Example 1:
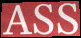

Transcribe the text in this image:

ASS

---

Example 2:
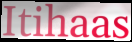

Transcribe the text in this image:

Itihaas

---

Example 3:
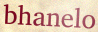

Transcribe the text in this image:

bhanelo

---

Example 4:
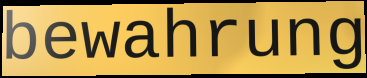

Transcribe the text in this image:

bewahrung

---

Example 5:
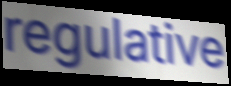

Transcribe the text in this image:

regulative